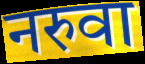
नरुवा